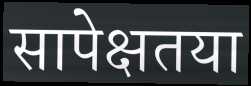
सापेक्षतया